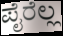
ಪೈರೆಲ್ಲ